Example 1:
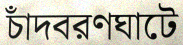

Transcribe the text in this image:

চাঁদবরণঘাটে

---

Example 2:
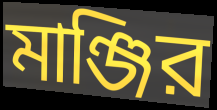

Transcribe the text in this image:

মাঞ্জির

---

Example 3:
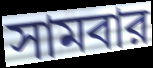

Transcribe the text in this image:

সামবার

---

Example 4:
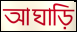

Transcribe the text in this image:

আঘাড়ি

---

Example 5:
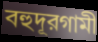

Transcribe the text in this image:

বহুদূরগামী